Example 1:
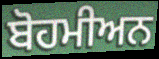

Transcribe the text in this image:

ਬੋਹਮੀਅਨ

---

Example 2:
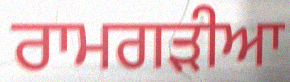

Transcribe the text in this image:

ਰਾਮਗੜੀਆ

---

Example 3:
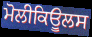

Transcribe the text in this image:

ਮੋਲੀਕਿਊਲਸ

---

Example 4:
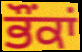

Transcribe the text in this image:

ਭੌਂਕਾਂ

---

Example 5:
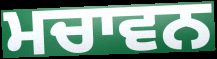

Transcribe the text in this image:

ਮਚਾਵਨ